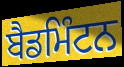
ਬੈਡਮਿੰਟਨ